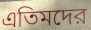
এতিমদের